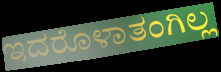
ಇದರೊಳಾತಂಗಿಲ್ಲ